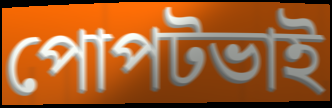
পোপটভাই